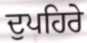
ਦੁਪਹਿਰੇ